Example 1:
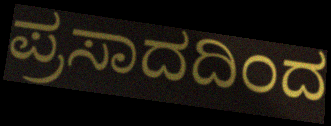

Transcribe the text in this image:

ಪ್ರಸಾದದಿಂದ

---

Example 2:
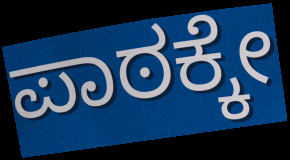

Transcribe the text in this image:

ಪಾಠಕ್ಕೇ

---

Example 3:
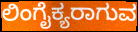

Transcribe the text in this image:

ಲಿಂಗೈಕ್ಯರಾಗುವ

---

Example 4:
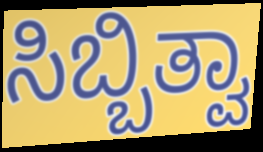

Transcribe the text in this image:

ಸಿಬ್ಬಿತ್ವಾ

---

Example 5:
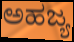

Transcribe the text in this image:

ಅಹಜ್ಯ